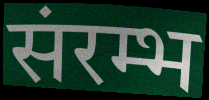
संरम्भ